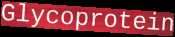
Glycoprotein